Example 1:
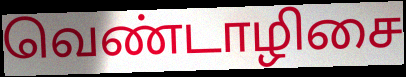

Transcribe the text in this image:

வெண்டாழிசை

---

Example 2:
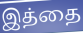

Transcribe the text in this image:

இத்தை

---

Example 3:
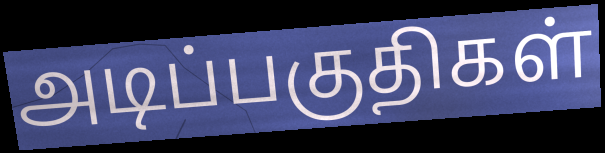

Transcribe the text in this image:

அடிப்பகுதிகள்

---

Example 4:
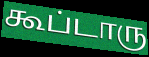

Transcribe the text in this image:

கூப்டாரு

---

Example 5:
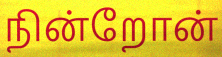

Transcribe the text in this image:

நின்றோன்